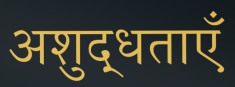
अशुद्धताएँ